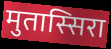
मुतास्सिरा